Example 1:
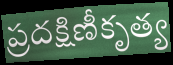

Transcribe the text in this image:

ప్రదక్షిణీకృత్య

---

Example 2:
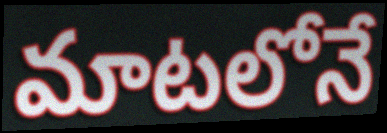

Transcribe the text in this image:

మాటలోనే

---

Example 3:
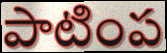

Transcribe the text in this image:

పాటింప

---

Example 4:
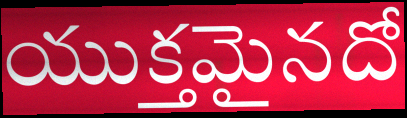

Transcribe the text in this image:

యుక్తమైనదో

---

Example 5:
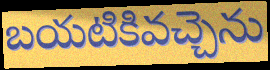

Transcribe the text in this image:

బయటికివచ్చెను